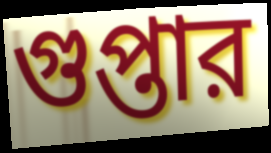
গুপ্তার